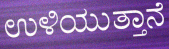
ಉಳಿಯುತ್ತಾನೆ